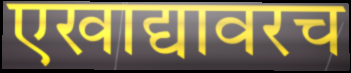
एखाद्यावरच